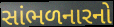
સાંભળનારનો